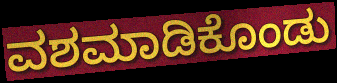
ವಶಮಾಡಿಕೊಂಡು